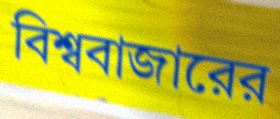
বিশ্ববাজারের